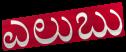
ಎಲುಬು